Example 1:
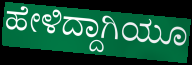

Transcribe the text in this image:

ಹೇಳಿದ್ದಾಗಿಯೂ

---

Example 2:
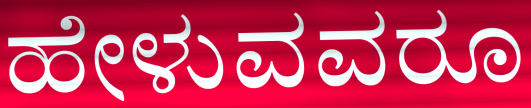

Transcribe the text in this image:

ಹೇಳುವವರೂ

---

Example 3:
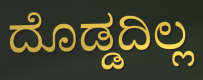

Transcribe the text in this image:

ದೊಡ್ಡದಿಲ್ಲ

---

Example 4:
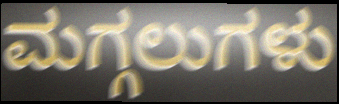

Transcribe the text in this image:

ಮಗ್ಗಲುಗಳು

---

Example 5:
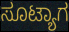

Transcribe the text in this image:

ಸೂಟ್ಯಾಗ